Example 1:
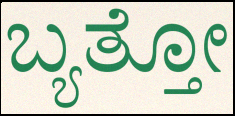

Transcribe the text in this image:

ಬ್ಯತ್ತೋ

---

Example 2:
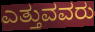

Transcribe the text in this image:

ಎತ್ತುವವರು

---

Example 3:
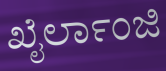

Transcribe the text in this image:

ಖೈರ್ಲಾಂಜಿ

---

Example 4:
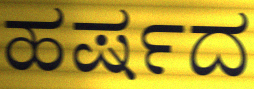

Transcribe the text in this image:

ಹರ್ಷದ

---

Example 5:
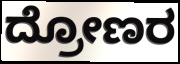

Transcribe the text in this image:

ದ್ರೋಣರ